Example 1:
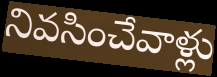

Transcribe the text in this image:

నివసించేవాళ్లు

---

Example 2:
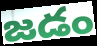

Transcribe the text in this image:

జడం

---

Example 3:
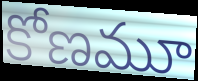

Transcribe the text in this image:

కోణమూ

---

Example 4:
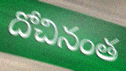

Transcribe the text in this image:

దోచినంత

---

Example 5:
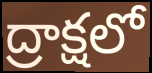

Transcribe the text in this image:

ద్రాక్షలో